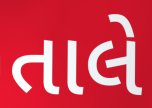
તાલે